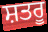
ਸ਼ਤਰੂ